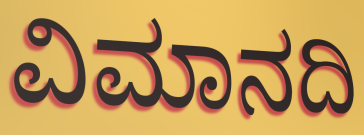
ವಿಮಾನದಿ